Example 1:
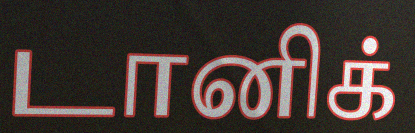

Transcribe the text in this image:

டானிக்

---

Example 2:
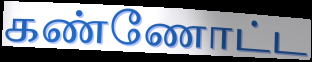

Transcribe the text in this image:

கண்ணோட்ட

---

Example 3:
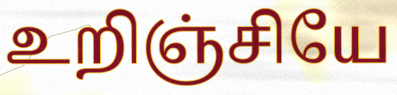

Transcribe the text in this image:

உறிஞ்சியே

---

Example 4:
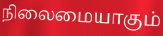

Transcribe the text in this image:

நிலைமையாகும்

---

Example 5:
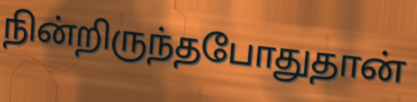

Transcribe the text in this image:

நின்றிருந்தபோதுதான்